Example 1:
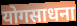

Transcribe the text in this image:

योगसाधना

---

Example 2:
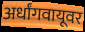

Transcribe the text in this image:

अर्धांगवायूवर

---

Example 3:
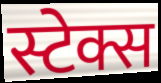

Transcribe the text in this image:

स्टेक्स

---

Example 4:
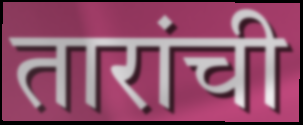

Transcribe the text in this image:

तारांची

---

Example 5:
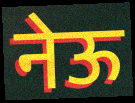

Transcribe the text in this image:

नेऊ